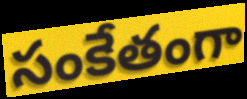
సంకేతంగా